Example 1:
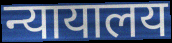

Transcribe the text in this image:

न्‍यायालय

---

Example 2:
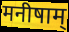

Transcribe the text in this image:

मनीषाम्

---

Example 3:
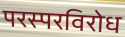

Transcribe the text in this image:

परस्परविरोध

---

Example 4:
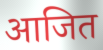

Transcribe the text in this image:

आजित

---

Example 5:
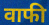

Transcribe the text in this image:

वाफी